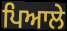
ਪਿਆਲੇ